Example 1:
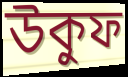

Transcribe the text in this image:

উকুফ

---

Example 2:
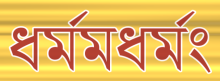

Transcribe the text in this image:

ধর্মমধর্মং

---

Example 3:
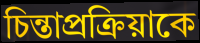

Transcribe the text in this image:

চিন্তাপ্রক্রিয়াকে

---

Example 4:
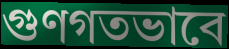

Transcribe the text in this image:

গুণগতভাবে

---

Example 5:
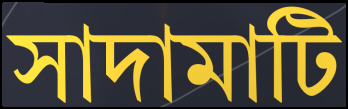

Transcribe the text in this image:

সাদামাটি